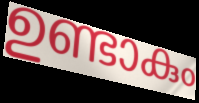
ഉണ്ടാകും